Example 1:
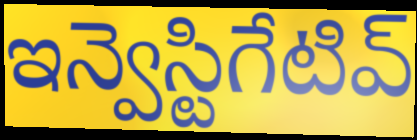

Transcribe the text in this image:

ఇన్వెస్టిగేటివ్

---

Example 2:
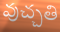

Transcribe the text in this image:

వుచ్చతి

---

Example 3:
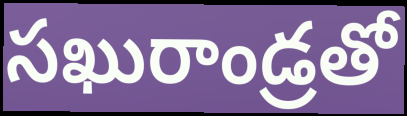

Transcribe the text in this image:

సఖురాండ్రతో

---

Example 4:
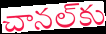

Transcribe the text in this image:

చానల్‌కు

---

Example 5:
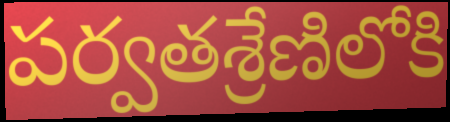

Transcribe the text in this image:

పర్వతశ్రేణిలోకి